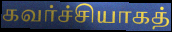
கவர்ச்சியாகத்